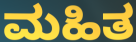
ಮಹಿತ